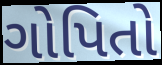
ગોપિતો